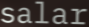
salar